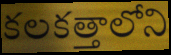
కలకత్తాలోని